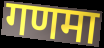
गणमा